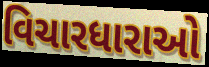
વિચારધારાઓ